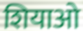
शियाओ